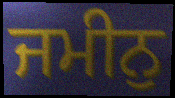
ਜਮੀਨੁ